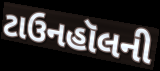
ટાઉનહૉલની